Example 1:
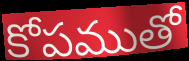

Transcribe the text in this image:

కోపముతో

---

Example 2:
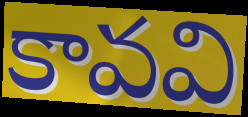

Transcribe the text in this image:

కావవి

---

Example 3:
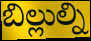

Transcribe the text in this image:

బిల్లుల్ని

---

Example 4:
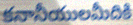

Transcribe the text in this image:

కనానీయులమీదికి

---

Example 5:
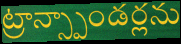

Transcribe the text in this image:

ట్రాన్స్పాండర్లను